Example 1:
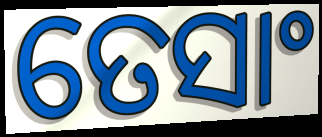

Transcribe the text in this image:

ତେସାଂ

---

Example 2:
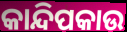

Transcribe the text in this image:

କାନ୍ଦିପକାଉ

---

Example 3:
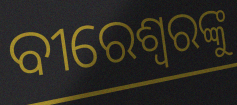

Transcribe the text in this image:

ବୀରେଶ୍ୱରଙ୍କୁ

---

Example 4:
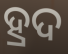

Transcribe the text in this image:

ହ୍ରଦ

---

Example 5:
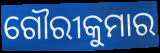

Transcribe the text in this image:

ଗୌରୀକୁମାର